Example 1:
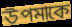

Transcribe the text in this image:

উপমাকে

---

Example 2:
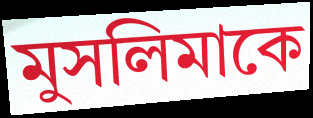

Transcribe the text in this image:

মুসলিমাকে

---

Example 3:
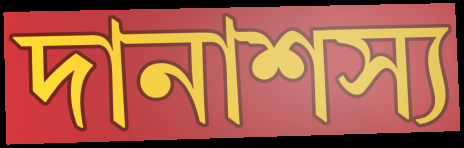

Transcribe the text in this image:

দানাশস্য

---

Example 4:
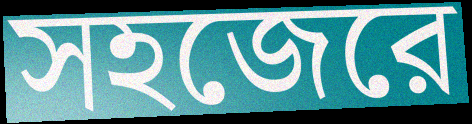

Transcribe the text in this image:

সহজেরে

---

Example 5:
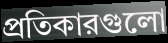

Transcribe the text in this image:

প্রতিকারগুলো